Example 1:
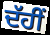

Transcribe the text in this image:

ਦੱਹੀਂ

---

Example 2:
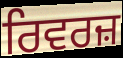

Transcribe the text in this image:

ਰਿਵਰਜ਼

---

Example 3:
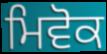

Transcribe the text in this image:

ਮਿਵੋਕ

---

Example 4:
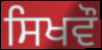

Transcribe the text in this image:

ਸਿਖਵੌ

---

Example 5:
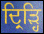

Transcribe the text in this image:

ਦ੍ਰਿੜ੍ਹਿ